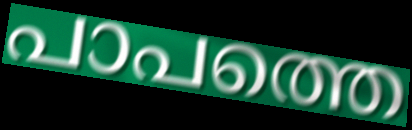
പാപത്തെ